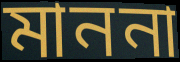
মাননা